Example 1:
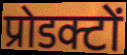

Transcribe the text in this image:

प्रोडक्टों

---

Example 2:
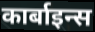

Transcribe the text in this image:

कार्बाइन्स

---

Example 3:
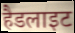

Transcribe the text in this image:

हैडलाइट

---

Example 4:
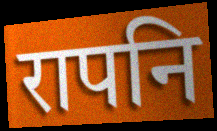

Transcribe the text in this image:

रापनि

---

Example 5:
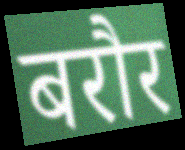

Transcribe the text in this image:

बरौर